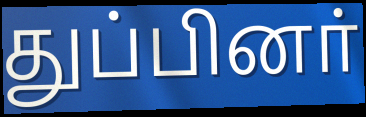
துப்பினர்